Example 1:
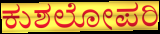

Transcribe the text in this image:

ಕುಶಲೋಪರಿ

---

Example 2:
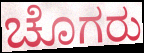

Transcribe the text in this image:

ಚೊಗರು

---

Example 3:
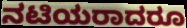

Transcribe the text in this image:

ನಟಿಯರಾದರೂ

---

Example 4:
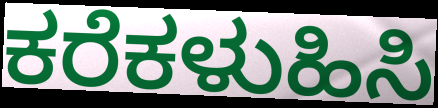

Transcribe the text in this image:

ಕರೆಕಳುಹಿಸಿ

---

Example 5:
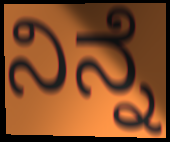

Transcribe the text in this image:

ನಿನ್ನೆ